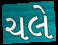
ચલે